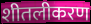
शीतलीकरण